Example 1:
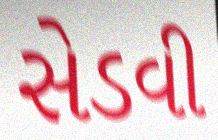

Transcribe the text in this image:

સેડવી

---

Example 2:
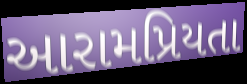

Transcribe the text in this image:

આરામપ્રિયતા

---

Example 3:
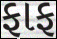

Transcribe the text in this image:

ફાફ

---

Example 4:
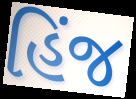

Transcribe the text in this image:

હિંજ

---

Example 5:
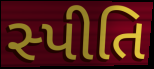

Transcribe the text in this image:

સ્પીતિ